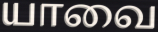
யாவை